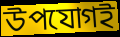
উপযোগই